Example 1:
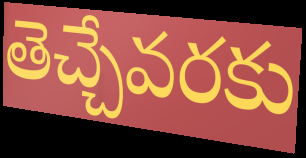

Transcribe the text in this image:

తెచ్చేవరకు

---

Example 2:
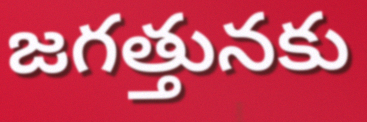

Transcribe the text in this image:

జగత్తునకు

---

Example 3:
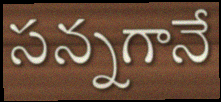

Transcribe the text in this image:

సన్నగానే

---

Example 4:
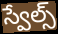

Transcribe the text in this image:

స్వేల్స్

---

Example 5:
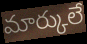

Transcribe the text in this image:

మార్కులే